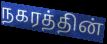
நகரத்தின்